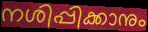
നശിപ്പിക്കാനും